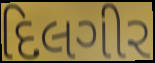
દિલગીર